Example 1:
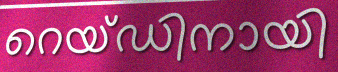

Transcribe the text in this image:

റെയ്ഡിനായി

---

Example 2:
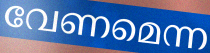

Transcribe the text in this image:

വേണമെന്ന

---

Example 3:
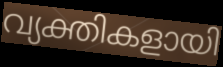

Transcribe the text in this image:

വ്യക്തികളായി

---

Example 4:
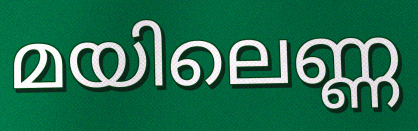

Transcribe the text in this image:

മയിലെണ്ണ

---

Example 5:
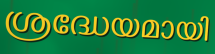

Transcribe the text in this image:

ശ്രദ്ധേയമായി